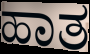
ಹಾತ